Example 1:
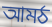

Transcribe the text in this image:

আমঠ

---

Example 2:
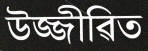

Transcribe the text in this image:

উজ্জীৱিত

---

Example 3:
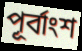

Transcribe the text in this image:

পূৰ্বাংশ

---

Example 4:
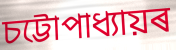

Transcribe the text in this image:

চট্টোপাধ্যায়ৰ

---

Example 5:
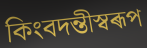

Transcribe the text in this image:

কিংবদন্তীস্বৰূপ